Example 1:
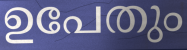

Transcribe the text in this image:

ഉപേതും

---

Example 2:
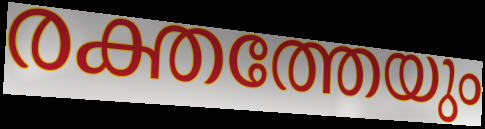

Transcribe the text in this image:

രക്തത്തേയും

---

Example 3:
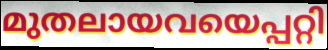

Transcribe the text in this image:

മുതലായവയെപ്പറ്റി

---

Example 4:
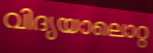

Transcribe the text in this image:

വിദ്യയാലൊറ്റ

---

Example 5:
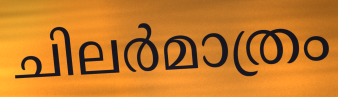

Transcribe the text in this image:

ചിലർമാത്രം